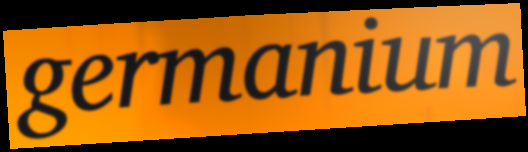
germanium